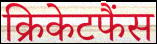
क्रिकेटफैंस